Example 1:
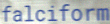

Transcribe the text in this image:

falciform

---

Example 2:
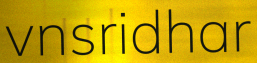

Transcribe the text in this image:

vnsridhar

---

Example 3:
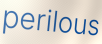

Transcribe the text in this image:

perilous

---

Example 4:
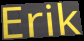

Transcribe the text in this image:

Erik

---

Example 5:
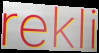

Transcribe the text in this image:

rekli